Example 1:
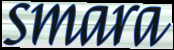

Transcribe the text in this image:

smara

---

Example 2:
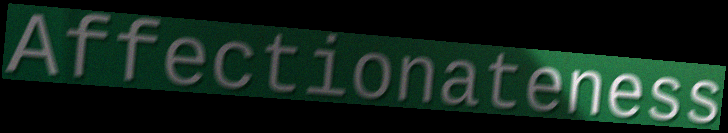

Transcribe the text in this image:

Affectionateness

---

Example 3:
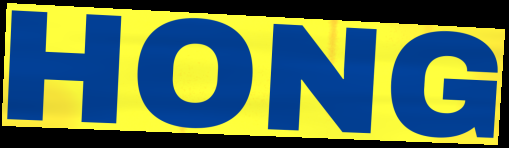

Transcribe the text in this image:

HONG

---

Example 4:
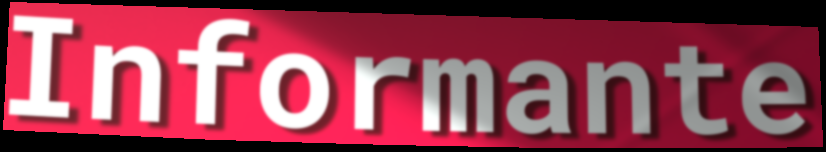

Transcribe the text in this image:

Informante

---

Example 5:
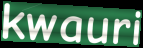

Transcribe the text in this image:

kwauri